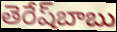
తెరేష్‌బాబు